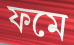
ফমে